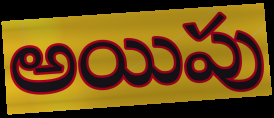
అయిపు